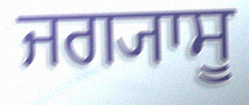
ਜਗ੍ਯਾਸੂ